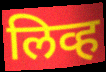
लिव्ह